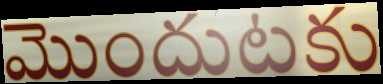
మొందుటకు